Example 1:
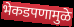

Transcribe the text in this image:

भेकडपणामुळे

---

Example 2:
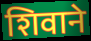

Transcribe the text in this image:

शिवाने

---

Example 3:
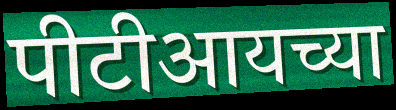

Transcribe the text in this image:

पीटीआयच्या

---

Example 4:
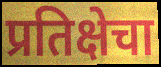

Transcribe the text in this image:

प्रतिक्षेचा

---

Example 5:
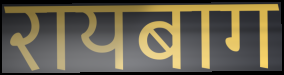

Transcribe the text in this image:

रायबाग